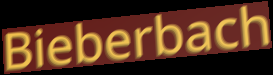
Bieberbach